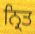
ਨ੍ਰਿਤ